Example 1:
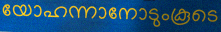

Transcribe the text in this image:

യോഹന്നാനോടുംകൂടെ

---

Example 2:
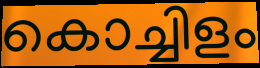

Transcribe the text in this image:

കൊച്ചിളം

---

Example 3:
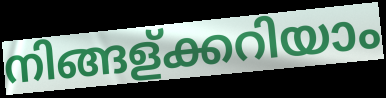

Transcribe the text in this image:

നിങ്ങള്ക്കറിയാം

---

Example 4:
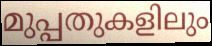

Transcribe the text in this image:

മുപ്പതുകളിലും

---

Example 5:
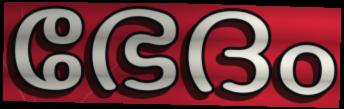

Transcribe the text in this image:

ഭേദം